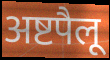
अष्टपैलू